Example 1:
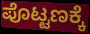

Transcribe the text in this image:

ಪೊಟ್ಟಣಕ್ಕೆ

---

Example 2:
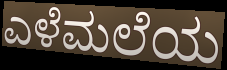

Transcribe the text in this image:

ಎಳೆಮಲೆಯ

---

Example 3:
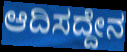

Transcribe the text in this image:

ಆದಿಸದ್ದೇನ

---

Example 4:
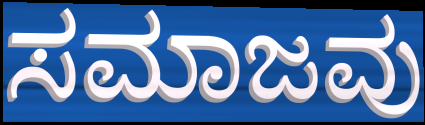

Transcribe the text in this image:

ಸಮಾಜವು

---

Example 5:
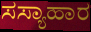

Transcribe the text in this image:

ಸಸ್ಯಾಹಾರ